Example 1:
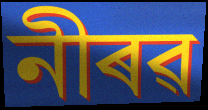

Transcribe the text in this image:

নীৰৱ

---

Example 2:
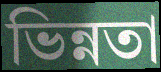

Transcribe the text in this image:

ভিন্নতা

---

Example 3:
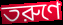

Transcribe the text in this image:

তৰুণে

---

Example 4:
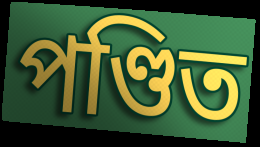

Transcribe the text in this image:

পণ্ডিত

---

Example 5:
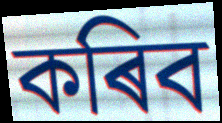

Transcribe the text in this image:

কৰিব